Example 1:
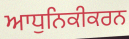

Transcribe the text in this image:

ਆਧੁਨਿਕੀਕਰਨ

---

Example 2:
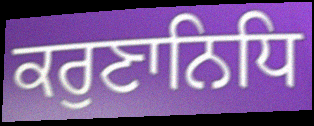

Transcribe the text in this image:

ਕਰੁਣਾਨਿਧਿ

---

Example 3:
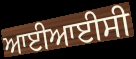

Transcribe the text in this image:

ਆਈਆਈਸੀ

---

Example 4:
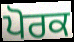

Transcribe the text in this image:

ਪੋਰਕ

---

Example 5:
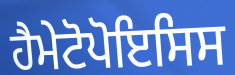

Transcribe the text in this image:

ਹੈਮੇਟੋਪੋਇਸਿਸ